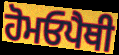
ਹੋਮਓਪੈਥੀ